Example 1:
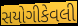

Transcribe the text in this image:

સયોગીકેવલી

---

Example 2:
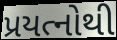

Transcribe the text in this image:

પ્રયત્નોથી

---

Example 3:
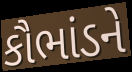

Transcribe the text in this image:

કૌભાંડને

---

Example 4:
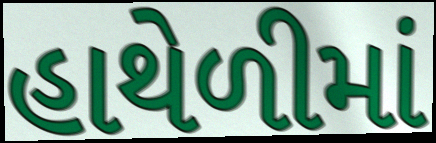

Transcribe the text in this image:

હાથેળીમાં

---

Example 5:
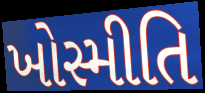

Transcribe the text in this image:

ખોસ્મીતિ